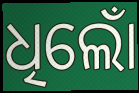
ଧିଲୋଁ